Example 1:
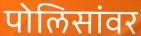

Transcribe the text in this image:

पोलिसांवर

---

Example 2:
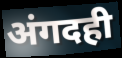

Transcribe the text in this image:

अंगदही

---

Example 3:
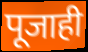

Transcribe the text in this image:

पूजाही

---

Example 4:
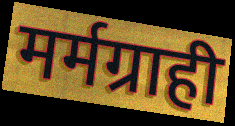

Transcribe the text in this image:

मर्मग्राही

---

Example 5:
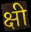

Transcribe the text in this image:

क्षी